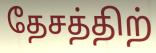
தேசத்திற்